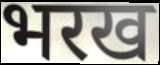
भरख